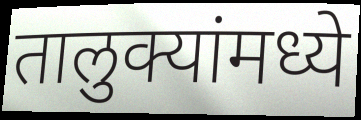
तालुक्यांमध्ये